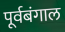
पूर्वबंगाल